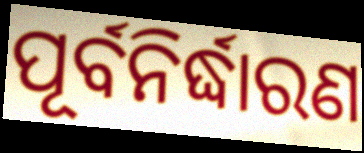
ପୂର୍ବନିର୍ଦ୍ଧାରଣ